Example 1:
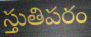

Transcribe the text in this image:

స్తుతిపరం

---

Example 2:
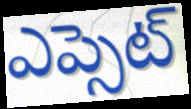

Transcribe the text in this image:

ఎప్సెట్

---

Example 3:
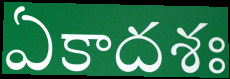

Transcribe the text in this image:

ఏకాదశః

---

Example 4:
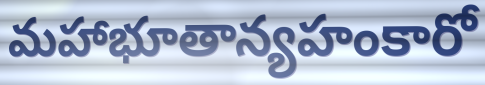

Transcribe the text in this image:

మహాభూతాన్యహంకారో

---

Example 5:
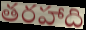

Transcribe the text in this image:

తరహాది